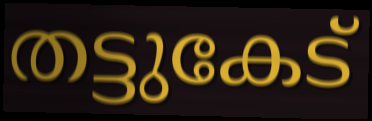
തട്ടുകേട്